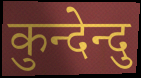
कुन्देन्दु